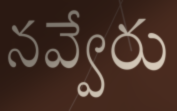
నవ్వేరు